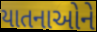
યાતનાઓને